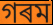
গৰম